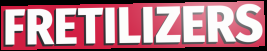
FRETILIZERS